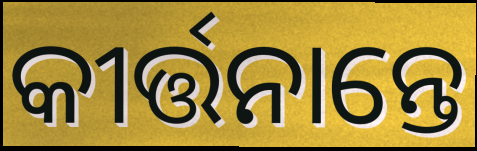
କୀର୍ତ୍ତନାନ୍ତେ